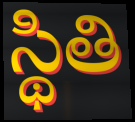
స్థితి